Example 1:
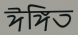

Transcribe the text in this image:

ঈঙ্গিত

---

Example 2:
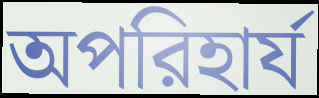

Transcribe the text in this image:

অপরিহার্য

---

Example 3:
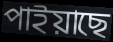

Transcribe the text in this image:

পাইয়াছে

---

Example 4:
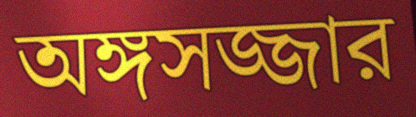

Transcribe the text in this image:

অঙ্গসজ্জার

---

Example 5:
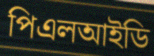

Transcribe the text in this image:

পিএলআইডি